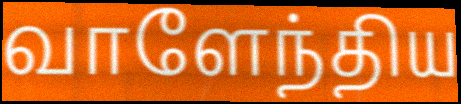
வாளேந்திய